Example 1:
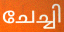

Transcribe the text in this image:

ചേച്ചി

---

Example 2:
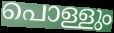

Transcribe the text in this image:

പൊള്ളും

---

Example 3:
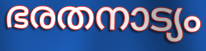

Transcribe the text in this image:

ഭരതനാട്യം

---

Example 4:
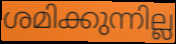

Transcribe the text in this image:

ശമിക്കുന്നില്ല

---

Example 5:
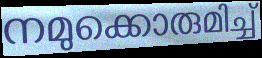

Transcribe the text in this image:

നമുക്കൊരുമിച്ച്